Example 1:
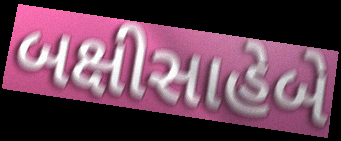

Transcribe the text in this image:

બક્ષીસાહેબે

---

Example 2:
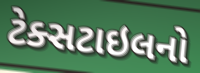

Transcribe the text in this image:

ટેક્સટાઇલનો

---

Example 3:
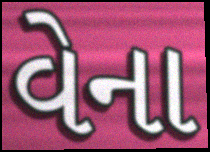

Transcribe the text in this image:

વેના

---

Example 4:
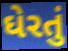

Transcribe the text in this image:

ઘેરતું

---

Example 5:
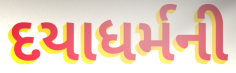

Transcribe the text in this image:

દયાધર્મની